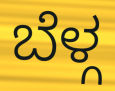
ಬೆಳ್ಗ